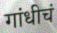
गांधीचं